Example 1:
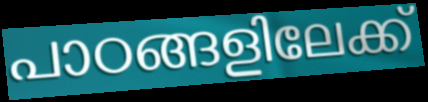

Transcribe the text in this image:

പാഠങ്ങളിലേക്ക്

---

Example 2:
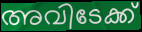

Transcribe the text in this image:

അവിടേക്ക്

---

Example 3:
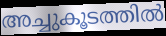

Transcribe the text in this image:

അച്ചുകൂടത്തിൽ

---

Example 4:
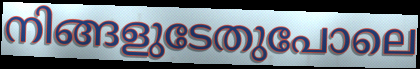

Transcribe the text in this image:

നിങ്ങളുടേതുപോലെ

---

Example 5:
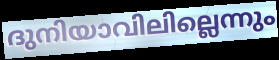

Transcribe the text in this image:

ദുനിയാവിലില്ലെന്നും